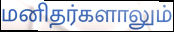
மனிதர்களாலும்